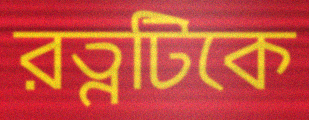
রত্নটিকে